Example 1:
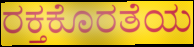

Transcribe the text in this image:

ರಕ್ತಕೊರತೆಯ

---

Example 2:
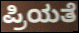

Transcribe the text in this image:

ಪ್ರಿಯತೆ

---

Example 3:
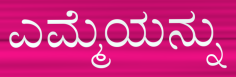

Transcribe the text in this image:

ಎಮ್ಮೆಯನ್ನು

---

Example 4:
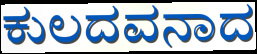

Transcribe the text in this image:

ಕುಲದವನಾದ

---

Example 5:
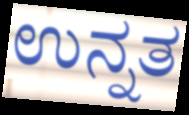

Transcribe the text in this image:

ಉನ್ನತ